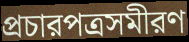
প্রচারপত্রসমীরণ